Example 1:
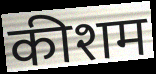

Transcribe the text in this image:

कीशम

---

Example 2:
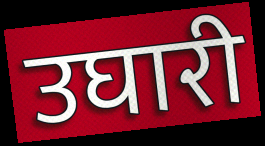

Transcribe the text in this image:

उघारी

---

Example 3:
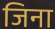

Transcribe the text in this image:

जिना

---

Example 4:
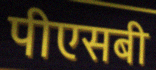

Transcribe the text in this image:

पीएसबी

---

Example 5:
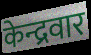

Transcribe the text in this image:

केन्‍द्रवार